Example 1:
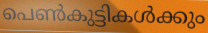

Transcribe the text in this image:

പെൺകുട്ടികൾക്കും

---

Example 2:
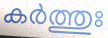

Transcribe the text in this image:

കർത്തുഃ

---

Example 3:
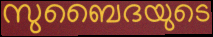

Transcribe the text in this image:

സുബൈദയുടെ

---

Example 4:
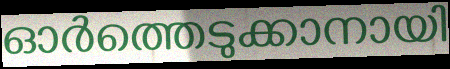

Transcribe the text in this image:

ഓർത്തെടുക്കാനായി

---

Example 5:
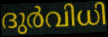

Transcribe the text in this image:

ദുർവിധി